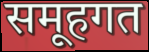
समूहगत